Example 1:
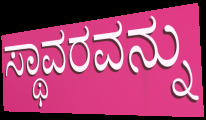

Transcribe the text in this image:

ಸ್ಥಾವರವನ್ನು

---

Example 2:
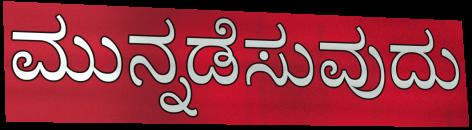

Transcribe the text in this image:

ಮುನ್ನಡೆಸುವುದು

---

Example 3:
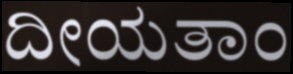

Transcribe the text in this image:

ದೀಯತಾಂ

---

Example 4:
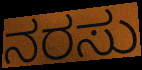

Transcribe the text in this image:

ನರಸು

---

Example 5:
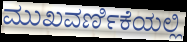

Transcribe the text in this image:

ಮುಖವರ್ಣಿಕೆಯಲ್ಲಿ